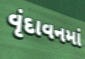
વૃંદાવનમાં